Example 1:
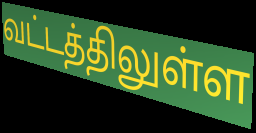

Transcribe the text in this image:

வட்டத்திலுள்ள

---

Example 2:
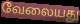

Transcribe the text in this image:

வேலையது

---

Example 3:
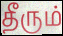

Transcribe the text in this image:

தீரும்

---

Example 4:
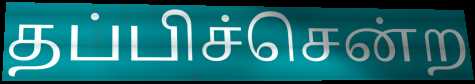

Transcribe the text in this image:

தப்பிச்சென்ற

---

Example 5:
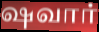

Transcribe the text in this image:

ஷவார்